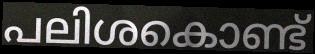
പലിശകൊണ്ട്